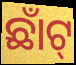
ଛାଁଟ୍